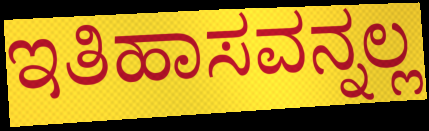
ಇತಿಹಾಸವನ್ನಲ್ಲ